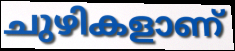
ചുഴികളാണ്